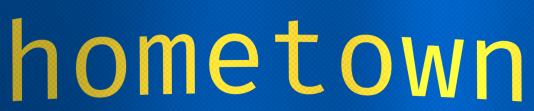
hometown